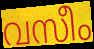
വസീം